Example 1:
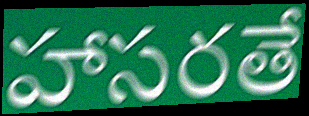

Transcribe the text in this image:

హాసరతే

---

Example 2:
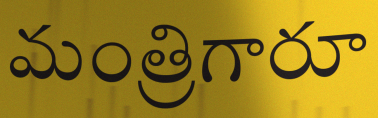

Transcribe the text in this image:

మంత్రిగారూ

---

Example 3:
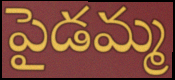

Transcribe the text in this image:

పైడమ్మ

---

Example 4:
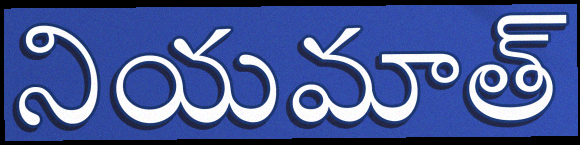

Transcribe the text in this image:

నియమాత్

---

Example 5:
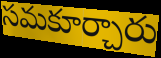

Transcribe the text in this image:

సమకూర్చారు